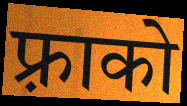
फ़्राको